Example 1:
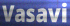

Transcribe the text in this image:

Vasavi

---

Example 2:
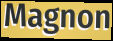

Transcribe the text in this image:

Magnon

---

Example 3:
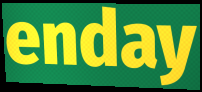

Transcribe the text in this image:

enday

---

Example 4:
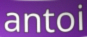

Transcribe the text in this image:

antoi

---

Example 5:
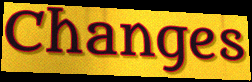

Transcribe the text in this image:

Changes